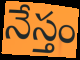
నేస్తం